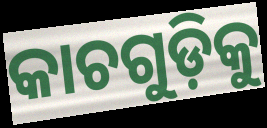
କାଚଗୁଡ଼ିକୁ